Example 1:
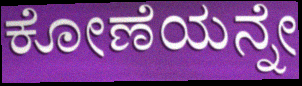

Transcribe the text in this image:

ಕೋಣೆಯನ್ನೇ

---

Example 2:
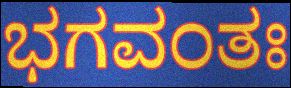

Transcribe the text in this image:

ಭಗವಂತಃ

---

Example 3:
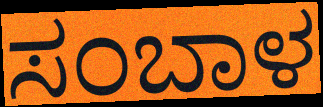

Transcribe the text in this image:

ಸಂಬಾಳ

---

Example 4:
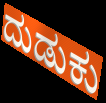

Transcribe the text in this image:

ದುಡುಕು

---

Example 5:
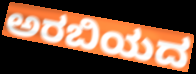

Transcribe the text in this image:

ಅರಬಿಯದ